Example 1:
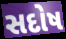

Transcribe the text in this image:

સદોષ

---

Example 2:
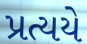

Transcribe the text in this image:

પ્રત્યયે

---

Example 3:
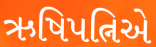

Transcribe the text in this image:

ઋષિપત્નિએ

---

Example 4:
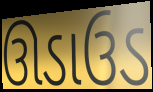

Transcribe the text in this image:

ઊડાઉડ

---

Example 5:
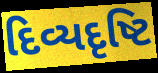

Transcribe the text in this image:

દિવ્યદૃષ્ટિ